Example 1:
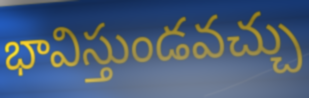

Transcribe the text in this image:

భావిస్తుండవచ్చు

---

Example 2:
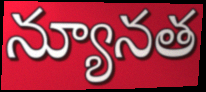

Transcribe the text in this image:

న్యూనత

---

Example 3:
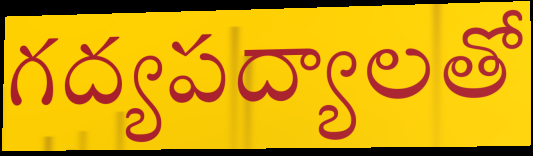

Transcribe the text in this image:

గద్యపద్యాలతో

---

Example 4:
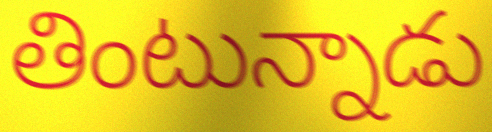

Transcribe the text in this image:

తింటున్నాడు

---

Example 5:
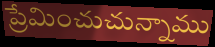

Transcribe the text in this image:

ప్రేమించుచున్నాము